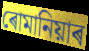
ৰোমানিয়াৰ